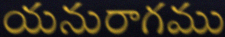
యనురాగము